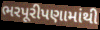
ભરપૂરીપણામાંથી